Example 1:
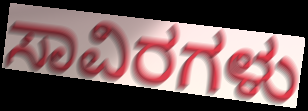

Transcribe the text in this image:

ಸಾವಿರಗಳು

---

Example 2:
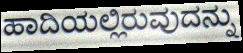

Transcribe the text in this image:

ಹಾದಿಯಲ್ಲಿರುವುದನ್ನು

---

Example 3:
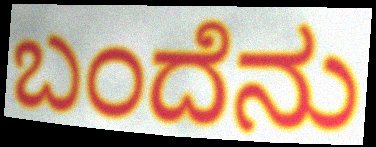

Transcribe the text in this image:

ಬಂದೆನು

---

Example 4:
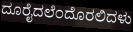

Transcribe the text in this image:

ದೂರೈದಲೆಂದೊರಲಿದಳು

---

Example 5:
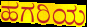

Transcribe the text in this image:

ಹಗರಿಯ